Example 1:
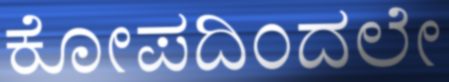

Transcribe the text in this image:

ಕೋಪದಿಂದಲೇ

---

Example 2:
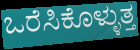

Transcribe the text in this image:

ಒರೆಸಿಕೊಳ್ಳುತ್ತ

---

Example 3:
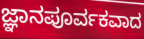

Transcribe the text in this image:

ಜ್ಞಾನಪೂರ್ವಕವಾದ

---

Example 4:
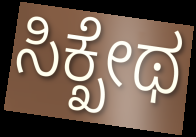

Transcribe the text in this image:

ಸಿಕ್ಖೇಥ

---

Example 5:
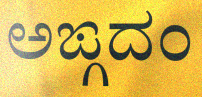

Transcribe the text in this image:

ಅಙ್ಗದಂ